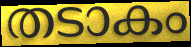
തടാകം